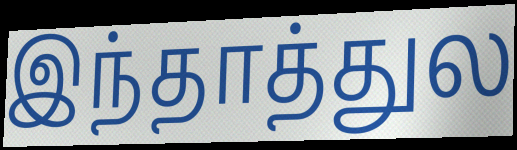
இந்தாத்துல